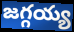
జగ్గయ్య